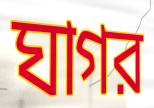
ঘাগর